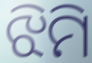
ଝିମି